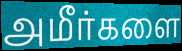
அமீர்களை